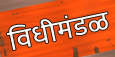
विधीमंडळ